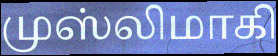
முஸ்லிமாகி